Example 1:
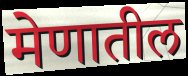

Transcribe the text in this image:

मेणातील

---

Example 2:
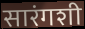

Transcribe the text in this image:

सारंगशी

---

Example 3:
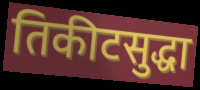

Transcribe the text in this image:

तिकीटसुद्धा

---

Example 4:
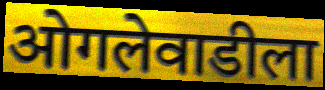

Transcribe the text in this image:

ओगलेवाडीला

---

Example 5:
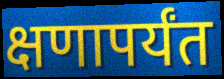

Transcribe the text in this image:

क्षणापर्यंत